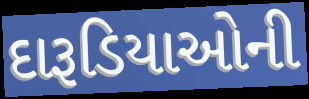
દારૂડિયાઓની